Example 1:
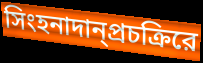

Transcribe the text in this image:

সিংহনাদান্প্রচক্রিরে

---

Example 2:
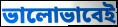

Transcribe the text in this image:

ভালোভাবেই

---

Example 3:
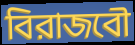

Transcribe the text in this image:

বিরাজবৌ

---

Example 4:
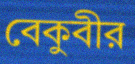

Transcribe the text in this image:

বেকুবীর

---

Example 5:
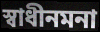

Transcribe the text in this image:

স্বাধীনমনা